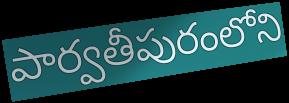
పార్వతీపురంలోని